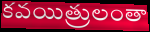
కవయిత్రులంతా